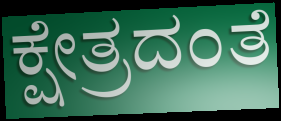
ಕ್ಷೇತ್ರದಂತೆ